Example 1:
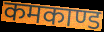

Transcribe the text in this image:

कमकाण्ड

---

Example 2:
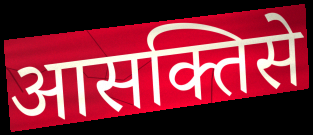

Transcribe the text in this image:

आसक्तिसे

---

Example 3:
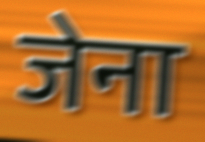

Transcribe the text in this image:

जेना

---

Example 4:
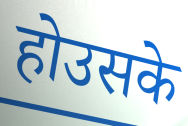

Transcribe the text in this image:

होउसके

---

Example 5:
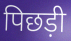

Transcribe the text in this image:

पिछड़ी